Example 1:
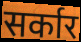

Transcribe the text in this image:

सर्कार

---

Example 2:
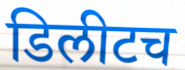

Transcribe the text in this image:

डिलीटच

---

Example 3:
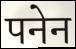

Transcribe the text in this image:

पनेन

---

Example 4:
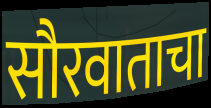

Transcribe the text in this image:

सौरवाताचा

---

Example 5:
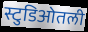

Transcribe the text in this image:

स्टुडिओतली